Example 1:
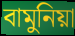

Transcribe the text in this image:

বামুনিয়া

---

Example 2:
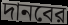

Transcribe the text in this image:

দানবের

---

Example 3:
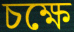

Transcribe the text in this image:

চক্ষে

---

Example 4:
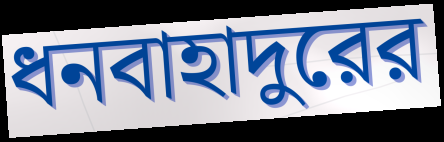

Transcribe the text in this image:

ধনবাহাদুরের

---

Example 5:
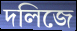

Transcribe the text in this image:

দলিজে